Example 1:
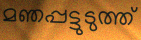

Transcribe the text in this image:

മഞപ്പട്ടുടുത്ത്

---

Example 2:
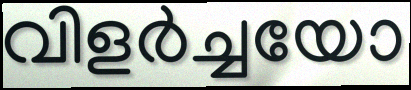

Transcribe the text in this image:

വിളർച്ചയോ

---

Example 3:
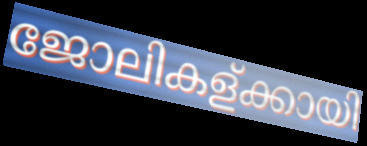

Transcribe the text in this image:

ജോലികള്ക്കായി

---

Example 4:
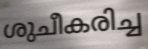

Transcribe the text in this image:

ശുചീകരിച്ച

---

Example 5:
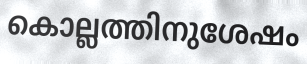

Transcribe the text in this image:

കൊല്ലത്തിനുശേഷം